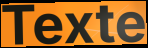
Texte